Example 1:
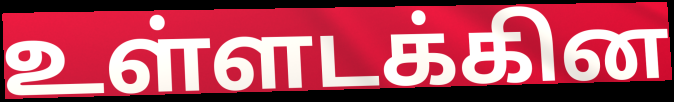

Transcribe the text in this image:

உள்ளடக்கின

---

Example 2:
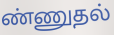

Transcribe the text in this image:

ண்ணுதல்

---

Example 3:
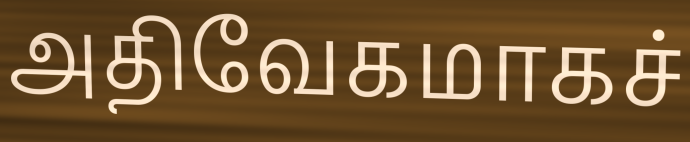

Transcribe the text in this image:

அதிவேகமாகச்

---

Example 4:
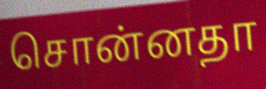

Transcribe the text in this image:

சொன்னதா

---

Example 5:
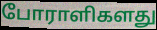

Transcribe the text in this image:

போராளிகளது